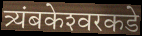
त्र्यंबकेश्वरकडे